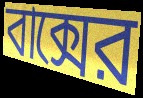
বাক্সের